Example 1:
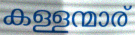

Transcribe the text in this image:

കള്ളന്മാര്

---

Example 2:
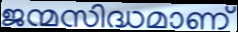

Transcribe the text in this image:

ജന്മസിദ്ധമാണ്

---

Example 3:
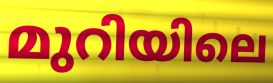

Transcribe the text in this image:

മുറിയിലെ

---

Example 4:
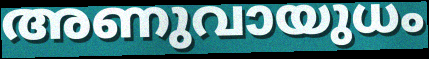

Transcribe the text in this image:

അണുവായുധം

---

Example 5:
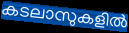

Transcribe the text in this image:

കടലാസുകളിൽ